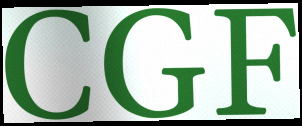
CGF